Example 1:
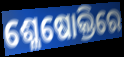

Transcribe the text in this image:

ଶ୍ଳେଷୋକ୍ତିରେ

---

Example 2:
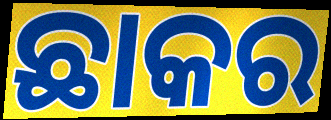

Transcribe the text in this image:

ଛାକର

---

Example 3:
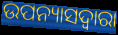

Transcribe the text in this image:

ଉପନ୍ୟାସଦ୍ୱାରା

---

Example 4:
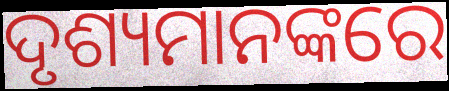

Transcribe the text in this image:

ଦୃଶ୍ୟମାନଙ୍କରେ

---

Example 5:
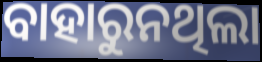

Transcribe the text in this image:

ବାହାରୁନଥିଲା